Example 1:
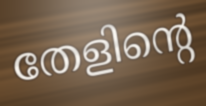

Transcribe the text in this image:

തേളിന്റെ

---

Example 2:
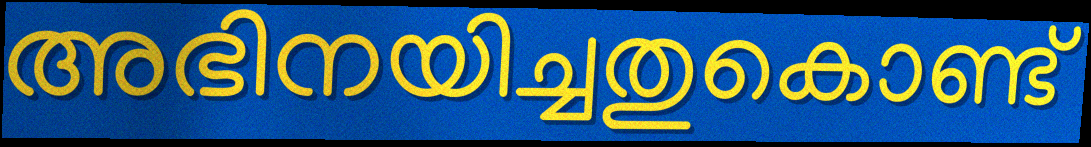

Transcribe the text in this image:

അഭിനയിച്ചതുകൊണ്ട്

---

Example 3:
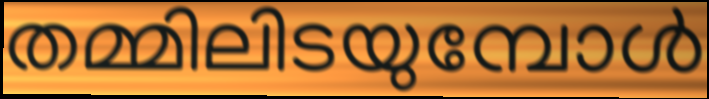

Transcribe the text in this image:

തമ്മിലിടയുമ്പോൾ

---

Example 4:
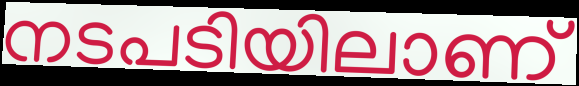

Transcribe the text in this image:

നടപടിയിലാണ്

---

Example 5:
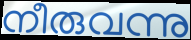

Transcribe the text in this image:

നീരുവന്നു